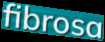
fibrosa